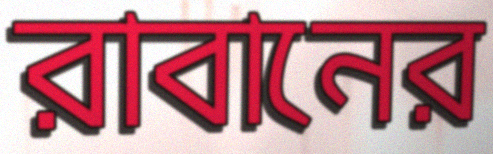
রাবানের